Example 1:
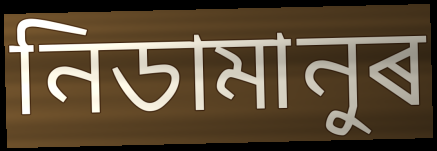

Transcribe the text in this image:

নিডামানুৰ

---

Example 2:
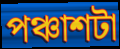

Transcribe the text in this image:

পঞ্চাশটা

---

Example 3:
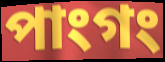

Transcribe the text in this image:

পাংগং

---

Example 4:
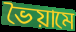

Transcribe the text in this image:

ভৈয়ামে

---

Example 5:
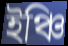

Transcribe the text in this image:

ইঞ্চি